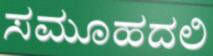
ಸಮೂಹದಲಿ